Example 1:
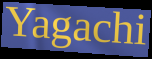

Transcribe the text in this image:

Yagachi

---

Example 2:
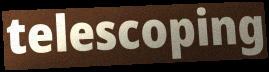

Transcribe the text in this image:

telescoping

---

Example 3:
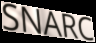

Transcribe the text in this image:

SNARC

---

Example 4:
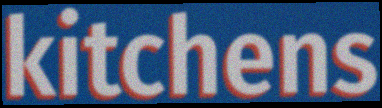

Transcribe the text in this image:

kitchens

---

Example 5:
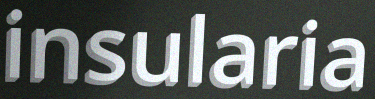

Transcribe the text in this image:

insularia